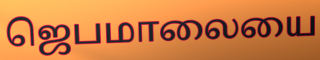
ஜெபமாலையை